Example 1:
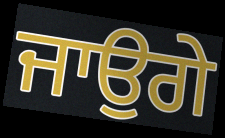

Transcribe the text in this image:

ਜਾਉਗੇ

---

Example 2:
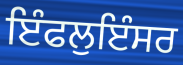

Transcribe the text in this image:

ਇੰਫਲੁਇੰਸਰ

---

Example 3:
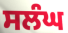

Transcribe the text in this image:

ਸਲੰਘ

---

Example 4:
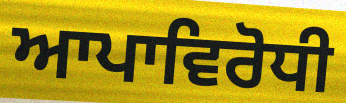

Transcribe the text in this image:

ਆਪਾਵਿਰੋਧੀ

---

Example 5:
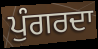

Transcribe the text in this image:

ਪੁੰਗਰਦਾ